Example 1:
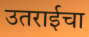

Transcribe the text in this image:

उतराईचा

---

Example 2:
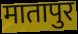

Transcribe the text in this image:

मातापुर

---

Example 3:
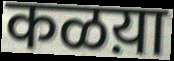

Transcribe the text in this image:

कळय़ा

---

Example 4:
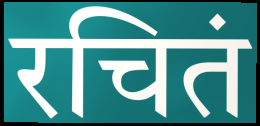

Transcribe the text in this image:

रचितं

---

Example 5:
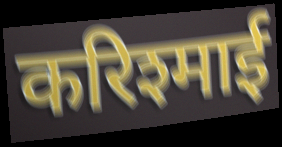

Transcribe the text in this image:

करिश्माई